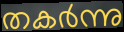
തകർന്നു